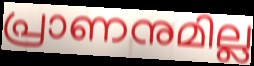
പ്രാണനുമില്ല